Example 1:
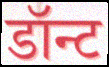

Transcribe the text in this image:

डॉन्ट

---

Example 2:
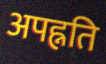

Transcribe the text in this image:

अपह्नति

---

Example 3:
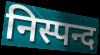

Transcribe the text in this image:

निस्पन्द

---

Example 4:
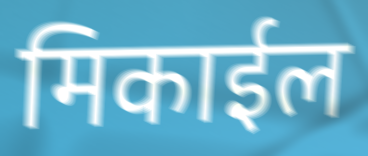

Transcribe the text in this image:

मिकाईल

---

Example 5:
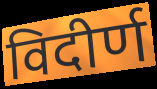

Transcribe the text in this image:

विदीर्ण